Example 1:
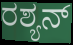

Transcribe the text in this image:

ರಶ್ಯನ್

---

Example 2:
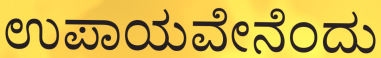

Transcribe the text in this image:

ಉಪಾಯವೇನೆಂದು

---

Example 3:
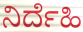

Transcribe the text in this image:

ನಿರ್ದೆಹಿ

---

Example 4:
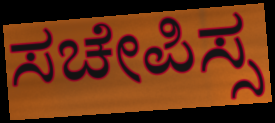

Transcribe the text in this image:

ಸಚೇಪಿಸ್ಸ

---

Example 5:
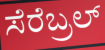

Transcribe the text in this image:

ಸೆರೆಬ್ರಲ್